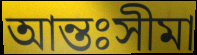
আন্তঃসীমা